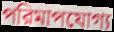
পরিমাপযোগ্য